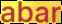
abar